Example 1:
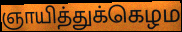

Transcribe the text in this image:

ஞாயித்துக்கெழம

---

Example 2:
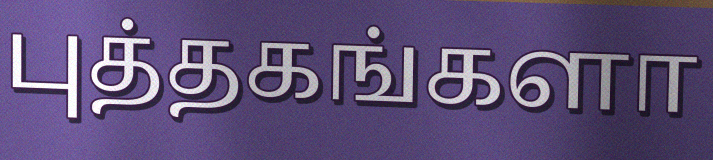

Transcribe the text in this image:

புத்தகங்களா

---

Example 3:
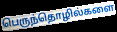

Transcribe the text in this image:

பெருந்தொழில்களை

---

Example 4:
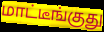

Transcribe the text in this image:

மாட்டீங்குது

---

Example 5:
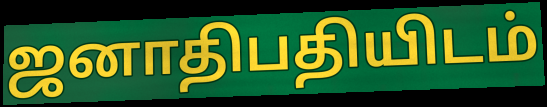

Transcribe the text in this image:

ஜனாதிபதியிடம்